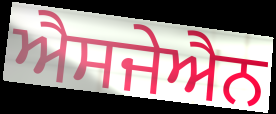
ਐਸਜੇਐਨ